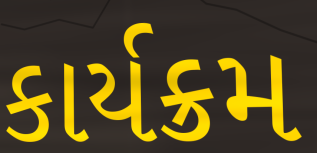
કાર્યક્રમ